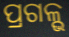
ପ୍ରଗଳ୍ଭ